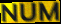
NUM